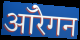
ऑरेगन